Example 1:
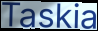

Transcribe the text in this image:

Taskia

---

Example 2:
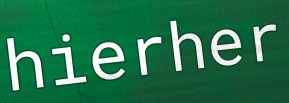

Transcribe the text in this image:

hierher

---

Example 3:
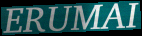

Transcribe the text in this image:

ERUMAI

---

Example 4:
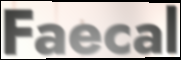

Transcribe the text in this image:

Faecal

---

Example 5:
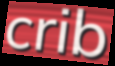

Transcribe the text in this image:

crib